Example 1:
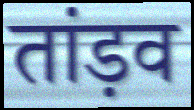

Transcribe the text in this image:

तांड़व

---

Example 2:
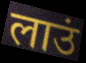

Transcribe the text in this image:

लाउं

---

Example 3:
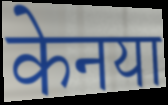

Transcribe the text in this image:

केनया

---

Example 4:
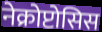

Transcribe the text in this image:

नेक्रोप्टोसिस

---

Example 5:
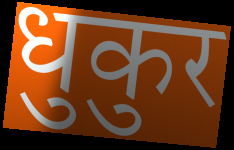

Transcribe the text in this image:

धुकुर